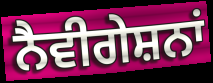
ਨੈਵੀਗੇਸ਼ਨਾਂ